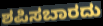
ಶಪಿಸಬಾರದು